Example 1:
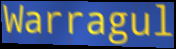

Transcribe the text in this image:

Warragul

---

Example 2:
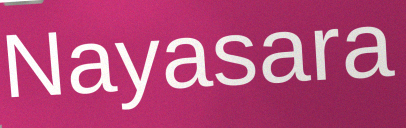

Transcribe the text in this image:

Nayasara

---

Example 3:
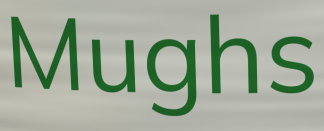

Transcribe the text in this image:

Mughs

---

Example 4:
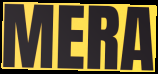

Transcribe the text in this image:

MERA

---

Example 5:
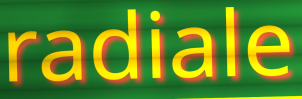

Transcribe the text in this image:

radiale